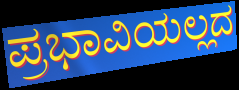
ಪ್ರಭಾವಿಯಲ್ಲದ